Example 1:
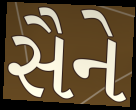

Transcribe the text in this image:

સૈને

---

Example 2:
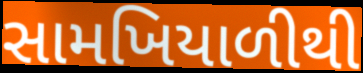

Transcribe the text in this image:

સામખિયાળીથી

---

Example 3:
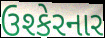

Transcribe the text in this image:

ઉશ્કેરનાર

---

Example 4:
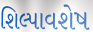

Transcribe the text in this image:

શિલ્પાવશેષ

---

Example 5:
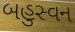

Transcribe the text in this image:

બહુસ્વન